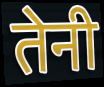
तेनी